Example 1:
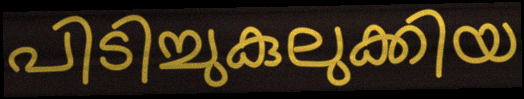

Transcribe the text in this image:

പിടിച്ചുകുലുക്കിയ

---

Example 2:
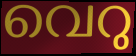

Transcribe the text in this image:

വെറു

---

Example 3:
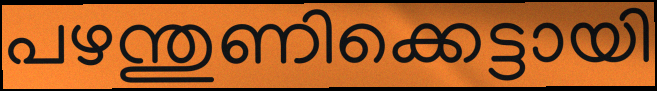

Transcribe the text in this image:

പഴന്തുണിക്കെട്ടായി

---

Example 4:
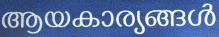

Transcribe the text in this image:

ആയകാര്യങ്ങൾ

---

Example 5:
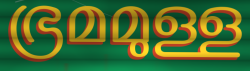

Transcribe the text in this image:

ഭ്രമമുള്ള